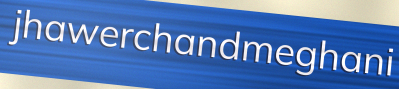
jhawerchandmeghani